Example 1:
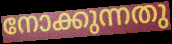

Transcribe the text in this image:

നോക്കുന്നതു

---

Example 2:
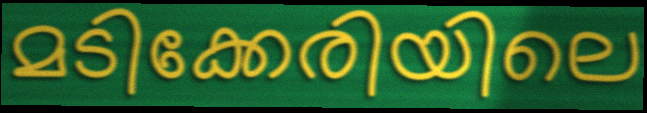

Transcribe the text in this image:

മടിക്കേരിയിലെ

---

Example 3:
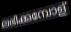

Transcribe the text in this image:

ലഭിക്കുമ്പോള്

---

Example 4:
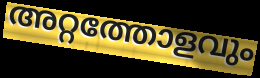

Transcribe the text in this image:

അറ്റത്തോളവും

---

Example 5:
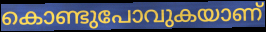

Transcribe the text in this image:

കൊണ്ടുപോവുകയാണ്